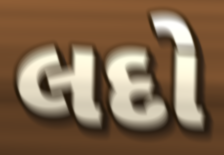
લદો